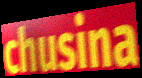
chusina